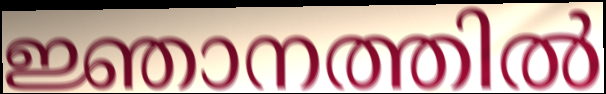
ജ്ഞാനത്തിൽ